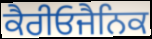
ਕੈਰੀਓਜੈਨਿਕ